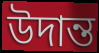
উদান্ত